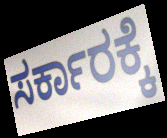
ಸರ್ಕಾರಕ್ಕೆ